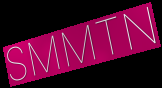
SMMTN